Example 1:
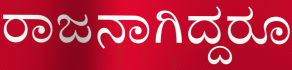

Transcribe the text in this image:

ರಾಜನಾಗಿದ್ದರೂ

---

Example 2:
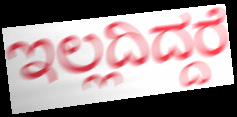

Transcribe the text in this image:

ಇಲ್ಲದಿದ್ದರೆ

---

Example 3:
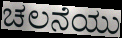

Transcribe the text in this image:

ಚಲನೆಯು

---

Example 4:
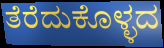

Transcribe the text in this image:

ತೆರೆದುಕೊಳ್ಳದ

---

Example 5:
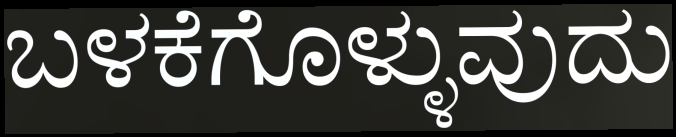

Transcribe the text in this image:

ಬಳಕೆಗೊಳ್ಳುವುದು